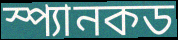
স্প্যানকড